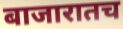
बाजारातच